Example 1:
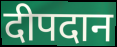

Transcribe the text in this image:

दीपदान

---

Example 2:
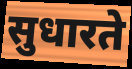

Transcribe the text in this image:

सुधारते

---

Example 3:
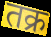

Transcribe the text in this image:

तक्र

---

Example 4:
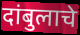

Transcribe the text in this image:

दांबुलाचे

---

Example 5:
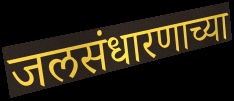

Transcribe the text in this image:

जलसंधारणाच्या